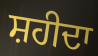
ਸ਼ਹੀਦਾ